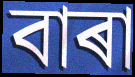
বাৰা